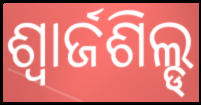
ଶ୍ୱାର୍ଜଶିଲ୍ଡ୍